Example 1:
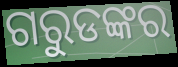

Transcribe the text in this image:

ଗରୁଡଙ୍କର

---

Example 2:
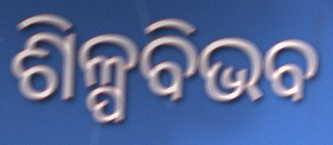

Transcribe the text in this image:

ଶିଳ୍ପବିଭବ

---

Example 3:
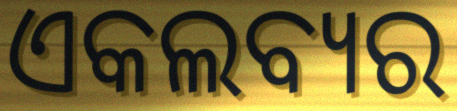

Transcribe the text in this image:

ଏକଲବ୍ୟର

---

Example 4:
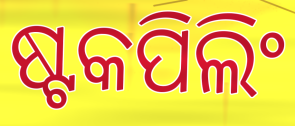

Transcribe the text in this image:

ଷ୍ଟକପିଲିଂ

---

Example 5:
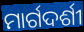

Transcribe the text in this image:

ମାର୍ଗଦର୍ଶୀ